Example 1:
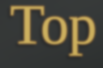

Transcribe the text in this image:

Top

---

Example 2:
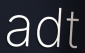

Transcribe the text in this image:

adt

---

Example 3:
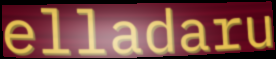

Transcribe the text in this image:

elladaru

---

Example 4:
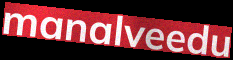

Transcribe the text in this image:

manalveedu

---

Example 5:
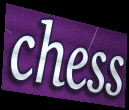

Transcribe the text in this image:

chess